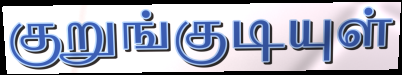
குறுங்குடியுள்